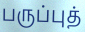
பருப்புத்